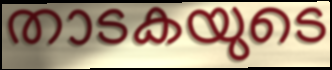
താടകയുടെ